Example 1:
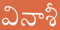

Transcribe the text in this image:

వినాశీ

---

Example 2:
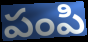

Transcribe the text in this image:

పంపి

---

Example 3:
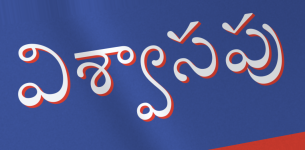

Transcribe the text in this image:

విశ్వాసపు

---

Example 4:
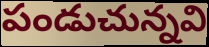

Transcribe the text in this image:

పండుచున్నవి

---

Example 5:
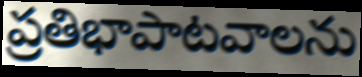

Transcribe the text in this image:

ప్రతిభాపాటవాలను